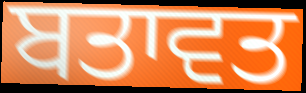
ਬਤਾਵਤ